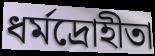
ধর্মদ্রোহীতা